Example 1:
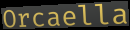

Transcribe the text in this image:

Orcaella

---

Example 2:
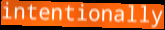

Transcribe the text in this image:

intentionally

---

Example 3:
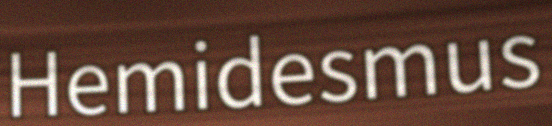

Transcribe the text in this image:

Hemidesmus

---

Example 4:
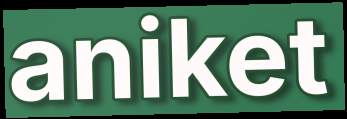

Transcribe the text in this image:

aniket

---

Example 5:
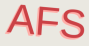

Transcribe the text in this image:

AFS